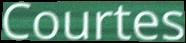
Courtes